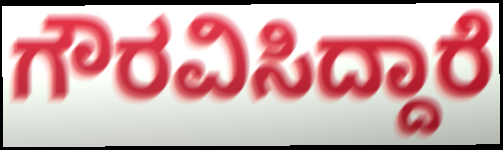
ಗೌರವಿಸಿದ್ದಾರೆ